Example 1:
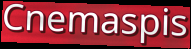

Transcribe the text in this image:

Cnemaspis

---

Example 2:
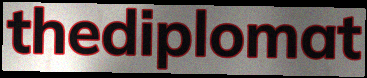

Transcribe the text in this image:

thediplomat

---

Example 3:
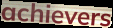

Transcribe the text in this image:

achievers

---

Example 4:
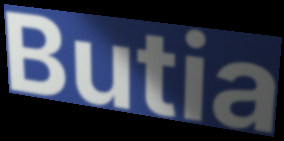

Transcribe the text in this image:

Butia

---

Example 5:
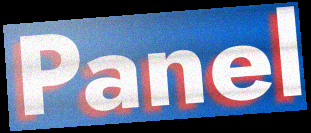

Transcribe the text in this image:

Panel